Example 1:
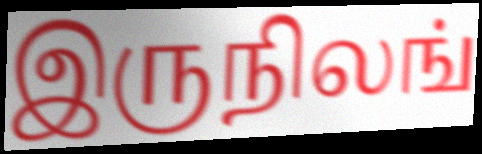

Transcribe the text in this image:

இருநிலங்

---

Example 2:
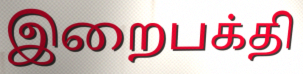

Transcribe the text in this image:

இறைபக்தி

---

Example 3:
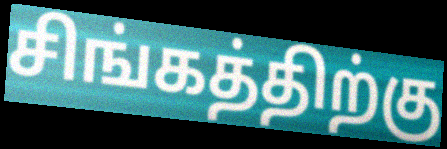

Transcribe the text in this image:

சிங்கத்திற்கு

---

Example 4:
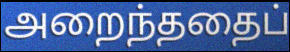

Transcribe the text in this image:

அறைந்ததைப்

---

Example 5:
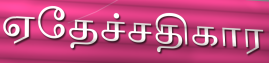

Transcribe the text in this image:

ஏதேச்சதிகார